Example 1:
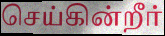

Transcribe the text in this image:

செய்கின்றீர்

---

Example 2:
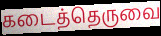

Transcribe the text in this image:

கடைத்தெருவை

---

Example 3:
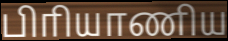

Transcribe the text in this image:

பிரியாணிய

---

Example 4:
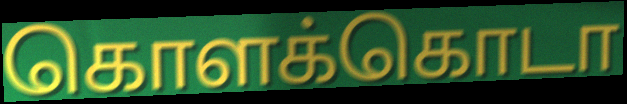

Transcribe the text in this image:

கொளக்கொடா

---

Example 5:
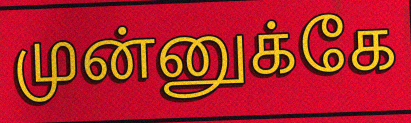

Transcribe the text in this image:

முன்னுக்கே